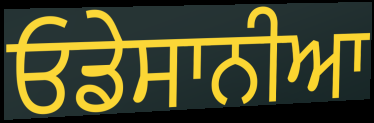
ਓਡੇਸਾਨੀਆ